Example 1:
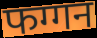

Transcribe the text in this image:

फग्गन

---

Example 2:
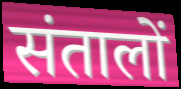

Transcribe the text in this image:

संतालों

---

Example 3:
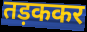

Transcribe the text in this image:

तड़ककर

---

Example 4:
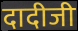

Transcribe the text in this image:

दादीजी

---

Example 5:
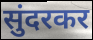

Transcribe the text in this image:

सुंदरकर